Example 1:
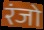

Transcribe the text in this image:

रंजो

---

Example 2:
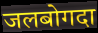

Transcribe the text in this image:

जलबोगदा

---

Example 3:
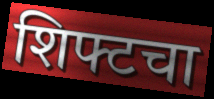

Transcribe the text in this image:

शिफ्टचा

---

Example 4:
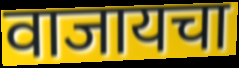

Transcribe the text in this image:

वाजायचा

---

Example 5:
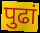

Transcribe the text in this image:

पुढां